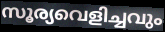
സൂര്യവെളിച്ചവും